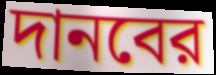
দানবের